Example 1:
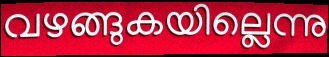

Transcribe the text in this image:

വഴങ്ങുകയില്ലെന്നു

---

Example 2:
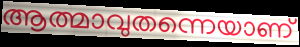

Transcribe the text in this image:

ആത്മാവുതന്നെയാണ്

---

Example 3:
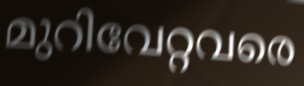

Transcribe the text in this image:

മുറിവേറ്റവരെ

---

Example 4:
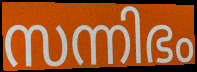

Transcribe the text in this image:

സന്നിഭം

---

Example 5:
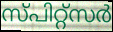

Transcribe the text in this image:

സ്പിറ്റ്സർ